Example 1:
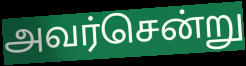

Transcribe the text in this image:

அவர்சென்று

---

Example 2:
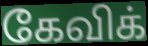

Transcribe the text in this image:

கேவிக்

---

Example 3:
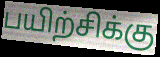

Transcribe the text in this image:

பயிற்சிக்கு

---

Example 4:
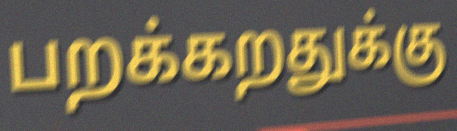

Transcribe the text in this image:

பறக்கறதுக்கு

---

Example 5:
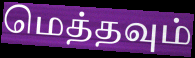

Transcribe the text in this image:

மெத்தவும்